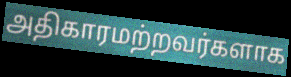
அதிகாரமற்றவர்களாக